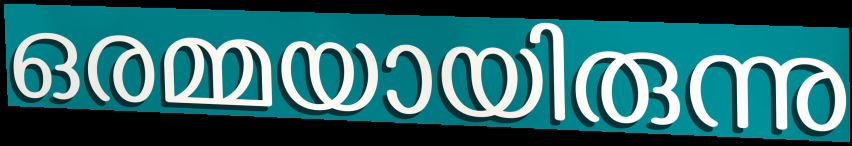
ഒരമ്മയായിരുന്നു